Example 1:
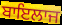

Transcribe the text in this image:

ਬਾਇਲਾਜ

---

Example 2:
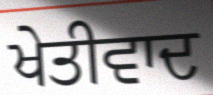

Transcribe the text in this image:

ਖੇਤੀਵਾਦ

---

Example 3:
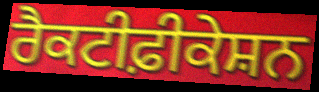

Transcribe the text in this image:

ਰੈਕਟੀਫ਼ੀਕੇਸ਼ਨ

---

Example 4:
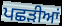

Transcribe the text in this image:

ਪਛੜੀਆਂ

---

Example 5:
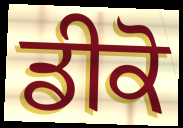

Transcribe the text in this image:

ਡੀਕੋ